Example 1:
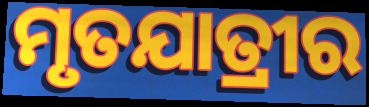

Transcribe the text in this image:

ମୃତଯାତ୍ରୀର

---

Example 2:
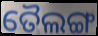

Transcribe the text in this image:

ତୈଲଙ୍ଗ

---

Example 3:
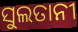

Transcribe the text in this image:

ସୁଲତାନୀ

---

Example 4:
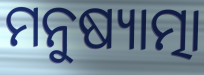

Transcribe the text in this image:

ମନୁଷ୍ୟାତ୍ମା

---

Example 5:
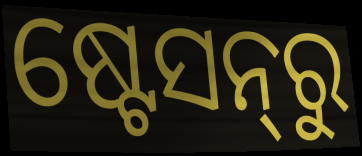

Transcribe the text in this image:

ଷ୍ଟେସନ୍‌ରୁ